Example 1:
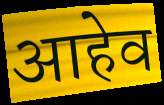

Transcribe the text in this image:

आहेव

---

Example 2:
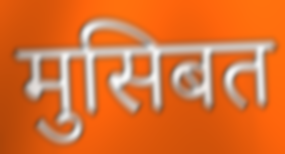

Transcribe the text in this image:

मुसिबत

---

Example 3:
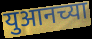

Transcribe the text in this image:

युआनच्या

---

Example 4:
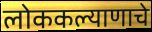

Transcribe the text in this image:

लोककल्याणाचे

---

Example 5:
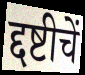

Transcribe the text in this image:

द्दष्टीचें